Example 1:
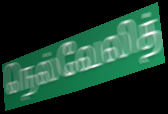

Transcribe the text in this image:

நெல்வேலித்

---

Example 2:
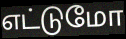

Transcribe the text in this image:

எட்டுமோ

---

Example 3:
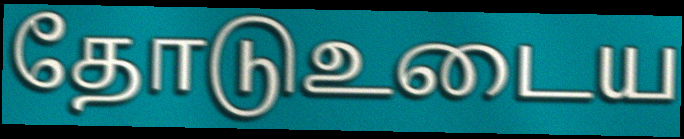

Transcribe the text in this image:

தோடுஉடைய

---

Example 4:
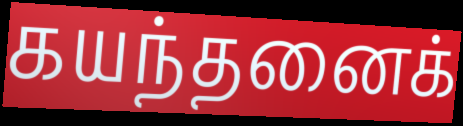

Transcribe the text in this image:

கயந்தனைக்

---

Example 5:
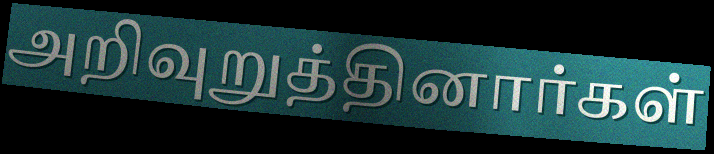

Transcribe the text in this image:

அறிவுறுத்தினார்கள்